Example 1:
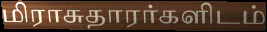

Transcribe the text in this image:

மிராசுதாரர்களிடம்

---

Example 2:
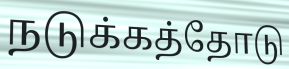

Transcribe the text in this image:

நடுக்கத்தோடு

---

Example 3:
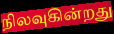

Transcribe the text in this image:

நிலவுகின்றது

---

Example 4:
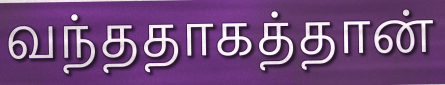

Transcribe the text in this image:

வந்ததாகத்தான்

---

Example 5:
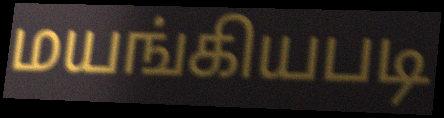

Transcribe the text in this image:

மயங்கியபடி